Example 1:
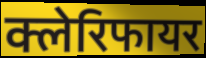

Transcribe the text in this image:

क्लेरिफायर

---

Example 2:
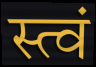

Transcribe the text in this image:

स्त्वं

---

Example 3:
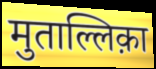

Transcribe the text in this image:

मुताल्लिक़ा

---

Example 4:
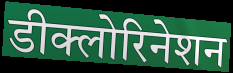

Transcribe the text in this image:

डीक्लोरिनेशन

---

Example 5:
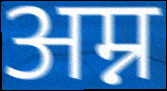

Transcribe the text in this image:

अम्न